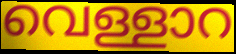
വെള്ളാറ